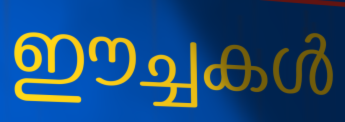
ഈച്ചകൾ